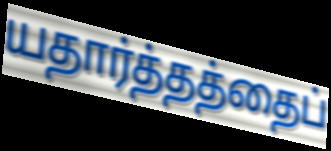
யதார்த்தத்தைப்